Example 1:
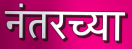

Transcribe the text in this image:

नंतरच्या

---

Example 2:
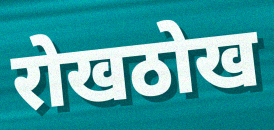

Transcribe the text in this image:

रोखठोख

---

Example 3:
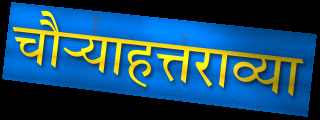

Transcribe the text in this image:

चौऱ्याहत्तराव्या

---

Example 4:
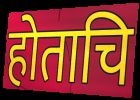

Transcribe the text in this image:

होताचि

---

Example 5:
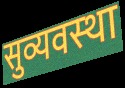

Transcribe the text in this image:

सुव्यवस्था